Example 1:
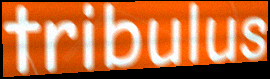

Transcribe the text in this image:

tribulus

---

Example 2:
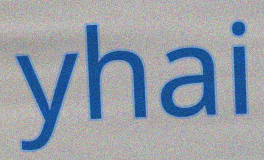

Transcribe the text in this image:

yhai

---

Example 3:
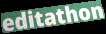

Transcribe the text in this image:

editathon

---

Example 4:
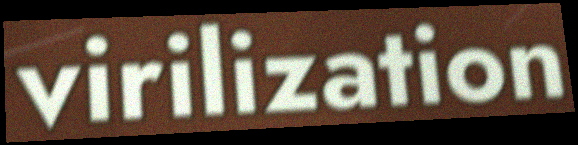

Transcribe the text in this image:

virilization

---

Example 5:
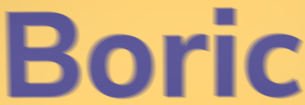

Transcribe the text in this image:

Boric